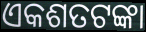
ଏକଶତଟଙ୍କା